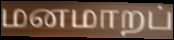
மனமாறப்